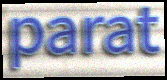
parat